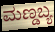
ಮಣ್ಡಬ್ಯ